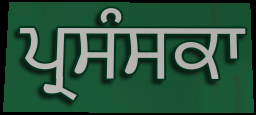
ਪ੍ਰਸੰਸਕਾ